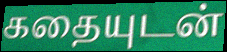
கதையுடன்